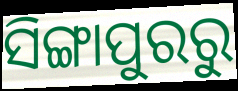
ସିଙ୍ଗାପୁରରୁ